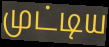
முட்டிய